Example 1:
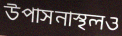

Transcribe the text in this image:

উপাসনাস্থলও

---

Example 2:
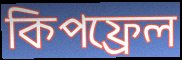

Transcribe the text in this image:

কিপফ্রেল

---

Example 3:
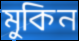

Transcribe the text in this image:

মুকিন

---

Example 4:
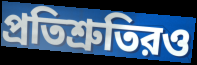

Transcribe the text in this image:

প্রতিশ্রুতিরও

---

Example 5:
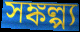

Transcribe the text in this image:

সঙ্কল্প্য